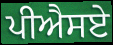
ਪੀਐਸਏ